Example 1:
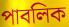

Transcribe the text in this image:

পাবলিক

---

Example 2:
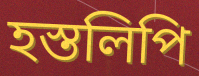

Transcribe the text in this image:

হস্তলিপি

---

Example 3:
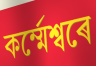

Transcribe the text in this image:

কৰ্ম্মেশ্বৰে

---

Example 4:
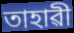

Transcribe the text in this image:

তাহাৱী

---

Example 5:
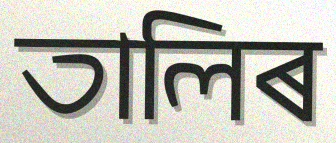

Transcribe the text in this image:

তালিৰ